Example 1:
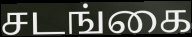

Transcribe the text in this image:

சடங்கை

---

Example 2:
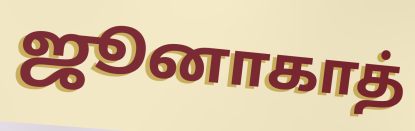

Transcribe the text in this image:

ஜூனாகாத்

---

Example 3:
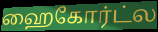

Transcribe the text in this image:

ஹைகோர்ட்ல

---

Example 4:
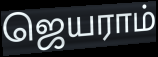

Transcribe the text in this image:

ஜெயராம்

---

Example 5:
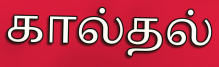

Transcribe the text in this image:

கால்தல்